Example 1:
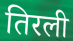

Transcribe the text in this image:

तिरली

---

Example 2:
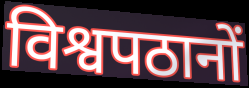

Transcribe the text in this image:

विश्वपठानों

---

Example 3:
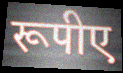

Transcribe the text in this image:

रूपीए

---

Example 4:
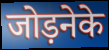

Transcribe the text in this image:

जोड़नेके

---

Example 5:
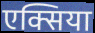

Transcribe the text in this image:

एक्सिया